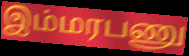
இம்மரபணு